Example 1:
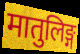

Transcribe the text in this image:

मातुलिङ्ग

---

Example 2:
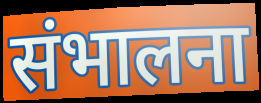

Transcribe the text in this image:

संभालना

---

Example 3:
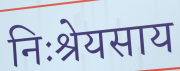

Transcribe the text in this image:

निःश्रेयसाय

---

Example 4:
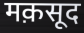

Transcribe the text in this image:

मक़सूद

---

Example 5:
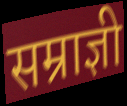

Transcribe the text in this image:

सम्राज्ञी